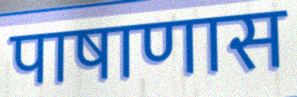
पाषाणास